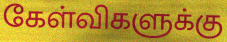
கேள்விகளுக்கு